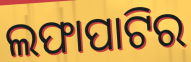
ଲଫାପାଟିର